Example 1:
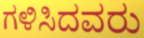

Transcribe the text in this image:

ಗಳಿಸಿದವರು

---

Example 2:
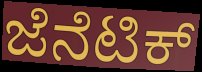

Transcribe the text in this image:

ಜೆನೆಟಿಕ್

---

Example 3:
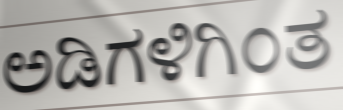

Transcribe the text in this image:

ಅಡಿಗಳಿಗಿಂತ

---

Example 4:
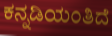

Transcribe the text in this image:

ಕನ್ನಡಿಯಂತಿದೆ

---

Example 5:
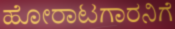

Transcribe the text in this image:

ಹೋರಾಟಗಾರನಿಗೆ